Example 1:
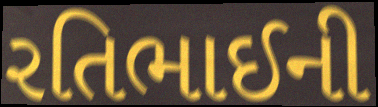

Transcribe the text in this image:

રતિભાઈની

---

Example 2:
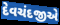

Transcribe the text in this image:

દેવચંદજીએ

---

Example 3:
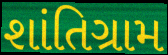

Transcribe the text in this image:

શાંતિગ્રામ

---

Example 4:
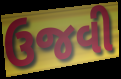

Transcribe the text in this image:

ઉજવી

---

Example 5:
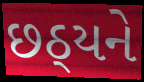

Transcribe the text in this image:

છઠ્યને